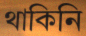
থাকিনি